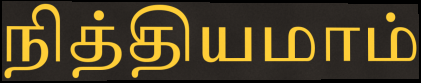
நித்தியமாம்